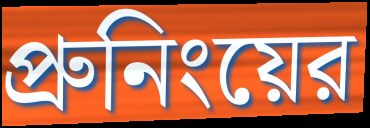
প্রুনিংয়ের